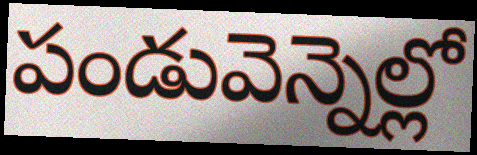
పండువెన్నెల్లో